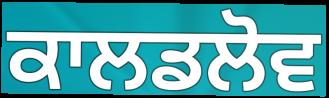
ਕਾਲਡਲੋਵ